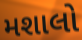
મશાલો